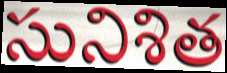
సునిశిత